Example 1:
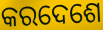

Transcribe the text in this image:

କରଦେଶେ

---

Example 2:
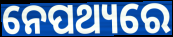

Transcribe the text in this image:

ନେପଥ୍ୟରେ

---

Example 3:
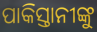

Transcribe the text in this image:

ପାକିସ୍ତାନୀଙ୍କୁ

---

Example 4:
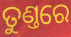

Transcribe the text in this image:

ତୁଣ୍ତରେ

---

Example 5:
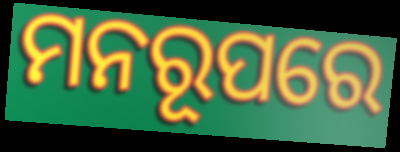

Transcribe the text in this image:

ମନରୂପରେ